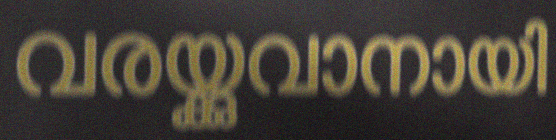
വരയ്ക്കുവാനായി